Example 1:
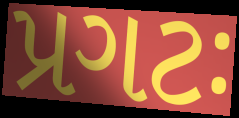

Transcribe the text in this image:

પ્રગટઃ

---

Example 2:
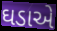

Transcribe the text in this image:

ઘડાએ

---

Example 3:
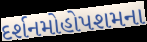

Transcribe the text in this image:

દર્શનમોહોપશમના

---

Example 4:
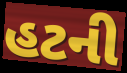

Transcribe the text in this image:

હટની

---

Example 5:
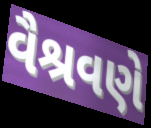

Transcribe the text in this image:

વૈશ્રવણે